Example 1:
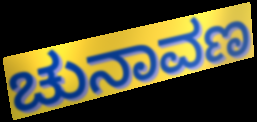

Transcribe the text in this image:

ಚುನಾವಣ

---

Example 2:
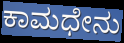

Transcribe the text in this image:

ಕಾಮಧೇನು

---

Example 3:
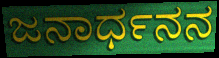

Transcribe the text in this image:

ಜನಾರ್ಧನನ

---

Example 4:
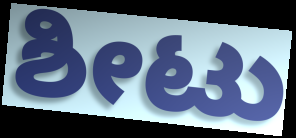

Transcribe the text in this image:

ಶೀಟು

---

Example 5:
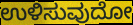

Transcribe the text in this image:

ಉಳಿಸುವುದೋ